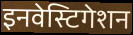
इनवेस्टिगेशन